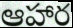
ఆహార